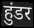
हुंडर